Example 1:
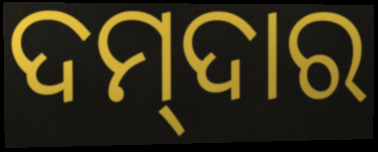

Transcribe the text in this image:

ଦମ୍‌ଦାର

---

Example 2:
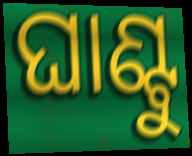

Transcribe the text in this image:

ଘାଣ୍ଟୁ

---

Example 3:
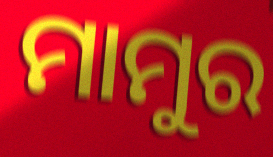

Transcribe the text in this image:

ମାମୁର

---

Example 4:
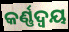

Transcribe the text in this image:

କର୍ଣ୍ଣଦ୍ୱୟ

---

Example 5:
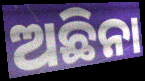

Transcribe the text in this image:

ଅଛିନା